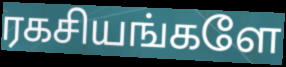
ரகசியங்களே